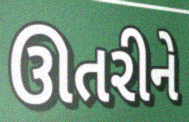
ઊતરીને